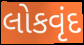
લોકવૃંદ